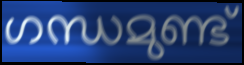
ഗന്ധമുണ്ട്